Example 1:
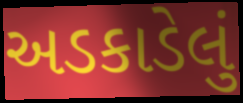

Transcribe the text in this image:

અડકાડેલું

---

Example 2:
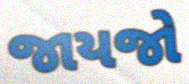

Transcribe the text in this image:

જાયજો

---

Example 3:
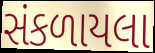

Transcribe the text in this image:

સંકળાયલા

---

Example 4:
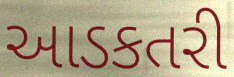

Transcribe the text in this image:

આડકતરી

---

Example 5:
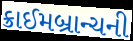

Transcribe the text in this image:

ક્રાઈમબ્રાન્ચની